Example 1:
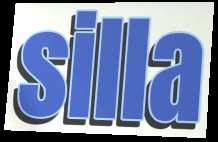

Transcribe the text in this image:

silla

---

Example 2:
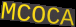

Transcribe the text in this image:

MCOCA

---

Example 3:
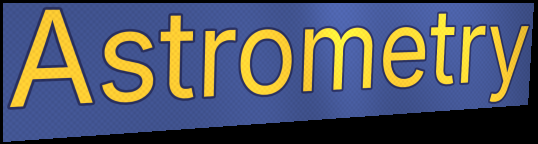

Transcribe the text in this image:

Astrometry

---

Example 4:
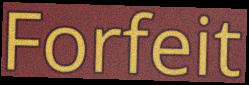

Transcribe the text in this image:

Forfeit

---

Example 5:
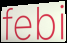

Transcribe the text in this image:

febi